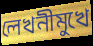
লেখনীমুখে